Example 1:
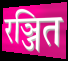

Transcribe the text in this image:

रञ्जित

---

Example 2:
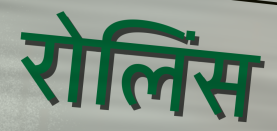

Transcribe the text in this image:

रोलिंस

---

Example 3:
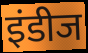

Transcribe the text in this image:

इंडीज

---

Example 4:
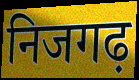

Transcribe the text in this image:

निजगढ़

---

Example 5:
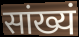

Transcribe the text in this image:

सांख्यं